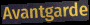
Avantgarde